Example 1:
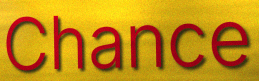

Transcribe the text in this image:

Chance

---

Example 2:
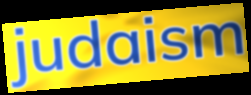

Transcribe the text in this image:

judaism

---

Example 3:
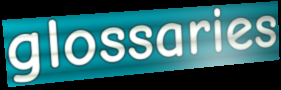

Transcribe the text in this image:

glossaries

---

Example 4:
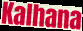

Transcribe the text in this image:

Kalhana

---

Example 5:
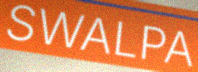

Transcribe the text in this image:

SWALPA